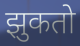
झुकतो